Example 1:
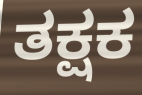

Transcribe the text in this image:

ತಕ್ಷಕ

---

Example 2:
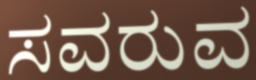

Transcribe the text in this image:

ಸವರುವ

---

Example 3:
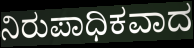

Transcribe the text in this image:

ನಿರುಪಾಧಿಕವಾದ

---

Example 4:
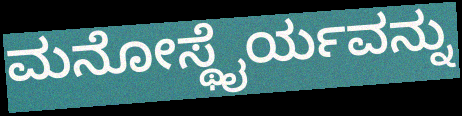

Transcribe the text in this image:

ಮನೋಸ್ಥೈರ್ಯವನ್ನು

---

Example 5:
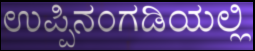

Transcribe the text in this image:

ಉಪ್ಪಿನಂಗಡಿಯಲ್ಲಿ